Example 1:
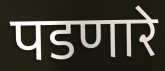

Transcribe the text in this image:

पडणारे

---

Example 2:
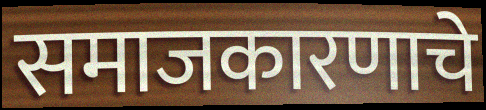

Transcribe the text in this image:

समाजकारणाचे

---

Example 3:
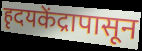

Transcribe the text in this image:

हृदयकेंद्रापासून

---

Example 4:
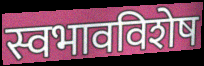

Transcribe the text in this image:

स्वभावविशेष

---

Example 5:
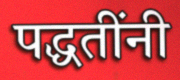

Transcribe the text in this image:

पद्धतींनी